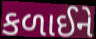
કળાઈને